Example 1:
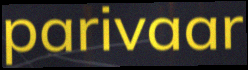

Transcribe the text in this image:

parivaar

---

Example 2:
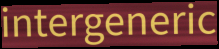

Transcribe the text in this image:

intergeneric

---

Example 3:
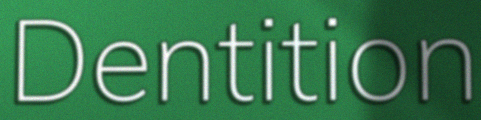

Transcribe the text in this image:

Dentition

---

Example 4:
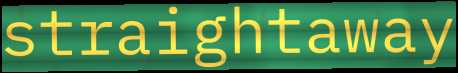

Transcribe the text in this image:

straightaway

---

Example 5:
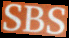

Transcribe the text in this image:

SBS